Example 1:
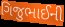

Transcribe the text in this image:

ગિજુભાઈની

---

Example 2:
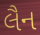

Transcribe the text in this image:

લૈન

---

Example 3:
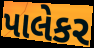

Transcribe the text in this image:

પાલેકર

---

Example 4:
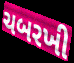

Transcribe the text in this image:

ચબરખી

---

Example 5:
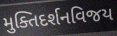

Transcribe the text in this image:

મુક્તિદર્શનવિજય